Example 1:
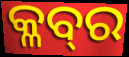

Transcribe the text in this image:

କ୍ଳବ୍‍ର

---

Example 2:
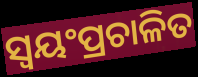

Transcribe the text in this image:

ସ୍ୱୟଂପ୍ରଚାଳିତ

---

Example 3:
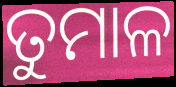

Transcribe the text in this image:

ତୁମାଳ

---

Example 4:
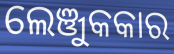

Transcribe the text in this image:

ଲେଞ୍ଜୁକକାର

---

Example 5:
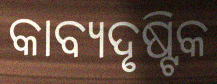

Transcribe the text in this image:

କାବ୍ୟଦୃଷ୍ଟିକ